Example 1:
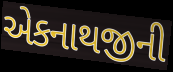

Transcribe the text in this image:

એકનાથજીની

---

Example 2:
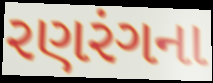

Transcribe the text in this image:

રણરંગના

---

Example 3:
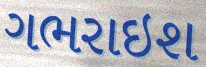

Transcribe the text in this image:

ગભરાઇશ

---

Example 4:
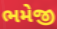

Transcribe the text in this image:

ભમેજી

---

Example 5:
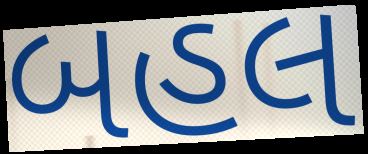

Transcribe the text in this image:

બહલ